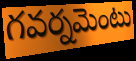
గవర్నమెంటు